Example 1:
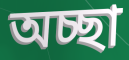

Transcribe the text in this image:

অচ্ছা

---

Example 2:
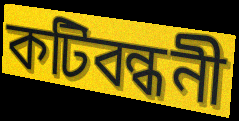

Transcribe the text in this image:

কটিবন্ধনী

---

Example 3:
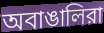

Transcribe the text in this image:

অবাঙালিরা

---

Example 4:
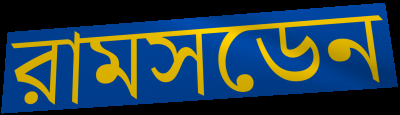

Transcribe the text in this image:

রামসডেন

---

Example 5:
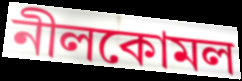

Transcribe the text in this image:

নীলকোমল